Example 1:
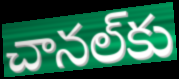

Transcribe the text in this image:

చానల్‌కు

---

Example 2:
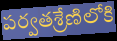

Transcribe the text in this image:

పర్వతశ్రేణిలోకి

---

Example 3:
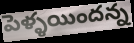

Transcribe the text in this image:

పెళ్ళయిందన్న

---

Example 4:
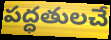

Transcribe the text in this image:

పద్ధతులచే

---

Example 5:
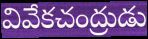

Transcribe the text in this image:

వివేకచంద్రుడు